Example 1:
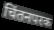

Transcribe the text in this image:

चिंतनपरक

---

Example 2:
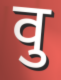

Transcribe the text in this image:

वु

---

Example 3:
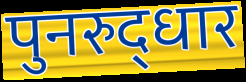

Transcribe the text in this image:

पुनरुद्धार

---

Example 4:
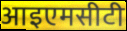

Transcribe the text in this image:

आइएमसीटी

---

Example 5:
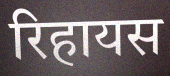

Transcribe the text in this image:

रिहायस